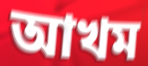
আখম